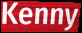
Kenny